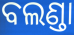
ବଲଣ୍ଡା